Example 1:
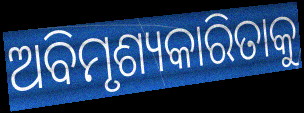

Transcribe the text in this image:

ଅବିମୃଶ୍ୟକାରିତାକୁ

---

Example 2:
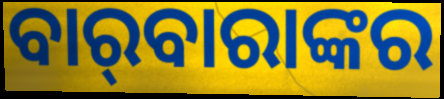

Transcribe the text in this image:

ବାର୍‌ବାରାଙ୍କର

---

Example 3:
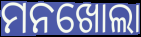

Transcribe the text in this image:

ମନଖୋଲା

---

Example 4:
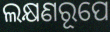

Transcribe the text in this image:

ଲକ୍ଷଣରୂପେ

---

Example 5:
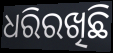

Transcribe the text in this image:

ଧରିରଖିଛି